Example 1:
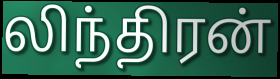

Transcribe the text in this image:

லிந்திரன்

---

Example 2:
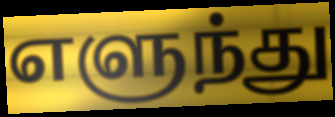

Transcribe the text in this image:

எளுந்து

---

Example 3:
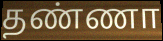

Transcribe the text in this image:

தண்ணா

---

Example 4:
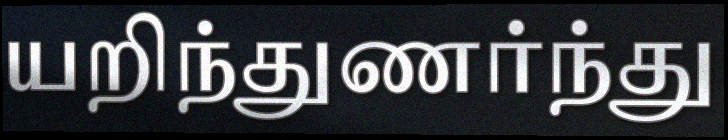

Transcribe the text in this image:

யறிந்துணர்ந்து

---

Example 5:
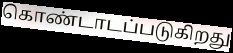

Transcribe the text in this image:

கொண்டாடப்படுகிறது